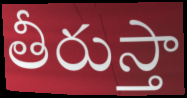
తీరుస్తా